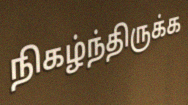
நிகழ்ந்திருக்க